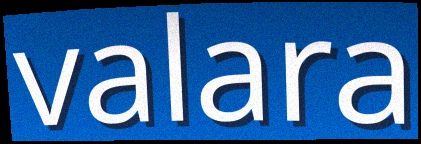
valara